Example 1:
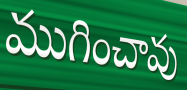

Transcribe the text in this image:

ముగించావు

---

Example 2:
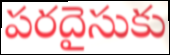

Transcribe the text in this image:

పరదైసుకు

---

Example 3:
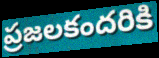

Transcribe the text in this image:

ప్రజలకందరికి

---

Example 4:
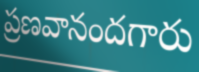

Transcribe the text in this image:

ప్రణవానందగారు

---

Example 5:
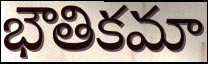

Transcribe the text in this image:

భౌతికమా